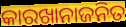
କାରଖାନାଜନିତ